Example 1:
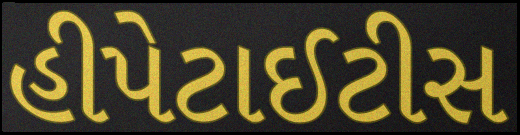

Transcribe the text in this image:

હીપેટાઈટીસ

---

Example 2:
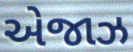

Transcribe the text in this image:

એજાઝ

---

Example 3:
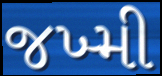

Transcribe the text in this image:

જખ્મી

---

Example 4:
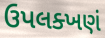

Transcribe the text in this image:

ઉપલક્ખણં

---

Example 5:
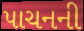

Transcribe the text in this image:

પાચનની